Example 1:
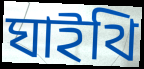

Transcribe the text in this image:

ঘাইথি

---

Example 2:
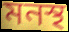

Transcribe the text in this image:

মনস্থ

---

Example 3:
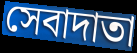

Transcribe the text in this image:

সেবাদাতা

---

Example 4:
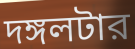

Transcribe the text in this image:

দঙ্গলটার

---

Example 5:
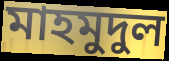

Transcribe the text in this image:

মাহমুদুল